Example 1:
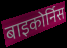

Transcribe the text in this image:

बाइकोर्निस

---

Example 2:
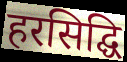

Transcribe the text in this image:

हरसिद्घि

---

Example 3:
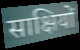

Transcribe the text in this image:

साक्षियों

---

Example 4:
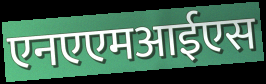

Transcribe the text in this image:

एनएएमआईएस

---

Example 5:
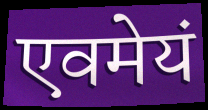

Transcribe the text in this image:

एवमेयं